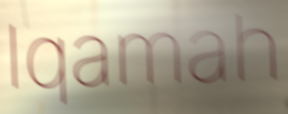
Iqamah